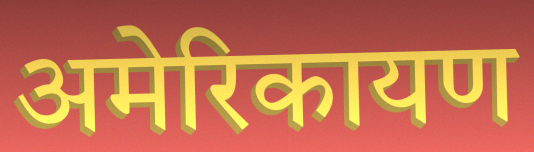
अमेरिकायण